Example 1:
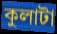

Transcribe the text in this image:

কুলাটা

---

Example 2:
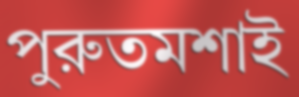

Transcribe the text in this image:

পুরুতমশাই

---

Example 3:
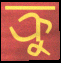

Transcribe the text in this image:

ক্রু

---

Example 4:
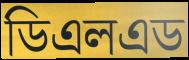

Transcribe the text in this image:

ডিএলএড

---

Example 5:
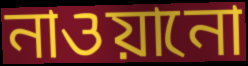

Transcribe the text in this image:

নাওয়ানো